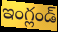
ఇంగ్లండ్